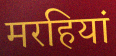
मरहियां